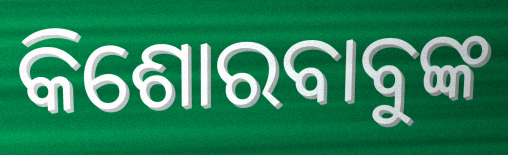
କିଶୋରବାବୁଙ୍କ